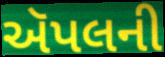
ઍપલની